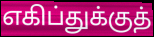
எகிப்துக்குத்